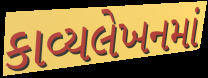
કાવ્યલેખનમાં